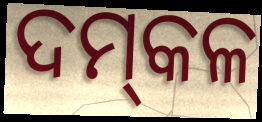
ଦମ୍‌କଳ